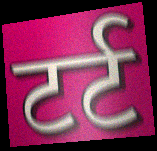
टर्ट